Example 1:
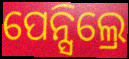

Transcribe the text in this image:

ପେନ୍ସିଲ୍ରେ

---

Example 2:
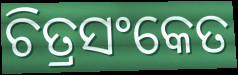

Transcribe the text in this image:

ଚିତ୍ରସଂକେତ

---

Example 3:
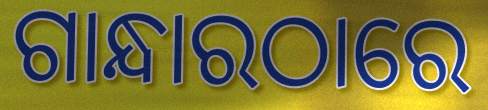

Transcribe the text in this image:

ଗାନ୍ଧାରଠାରେ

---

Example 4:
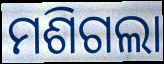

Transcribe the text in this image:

ମଶିଗଲା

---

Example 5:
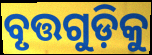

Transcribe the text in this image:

ବୃତ୍ତଗୁଡ଼ିକୁ